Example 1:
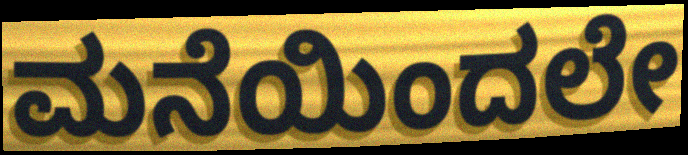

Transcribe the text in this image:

ಮನೆಯಿಂದಲೇ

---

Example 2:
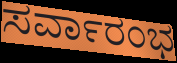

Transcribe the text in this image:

ಸರ್ವಾರಂಭ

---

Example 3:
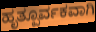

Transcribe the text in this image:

ಹೃತ್ಪೂರ್ವಕವಾಗಿ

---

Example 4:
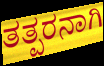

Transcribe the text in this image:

ತತ್ಪರನಾಗಿ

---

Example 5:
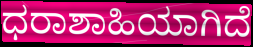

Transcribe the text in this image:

ಧರಾಶಾಹಿಯಾಗಿದೆ